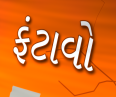
ફંટાવો